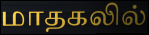
மாதகலில்